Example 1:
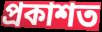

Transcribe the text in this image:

প্ৰকাশত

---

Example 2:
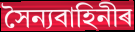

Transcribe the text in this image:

সৈন্যবাহিনীৰ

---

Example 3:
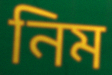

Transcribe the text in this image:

নিম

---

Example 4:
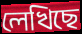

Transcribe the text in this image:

লেখিছে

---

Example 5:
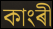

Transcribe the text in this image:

কাংৰী